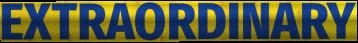
EXTRAORDINARY